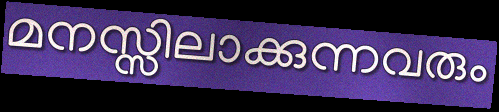
മനസ്സിലാക്കുന്നവരും